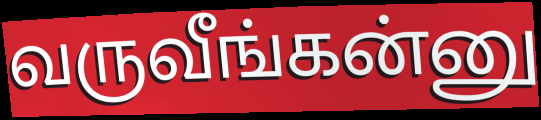
வருவீங்கன்னு